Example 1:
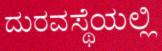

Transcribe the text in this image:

ದುರವಸ್ಥೆಯಲ್ಲಿ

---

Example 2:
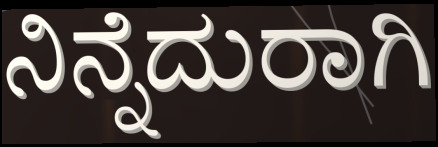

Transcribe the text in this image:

ನಿನ್ನೆದುರಾಗಿ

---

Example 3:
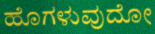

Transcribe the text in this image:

ಹೊಗಳುವುದೋ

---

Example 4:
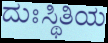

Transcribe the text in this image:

ದುಃಸ್ಥಿತಿಯ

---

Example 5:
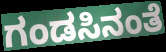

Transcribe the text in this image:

ಗಂಡಸಿನಂತೆ